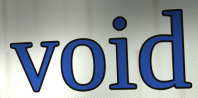
void